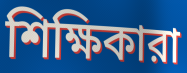
শিক্ষিকারা